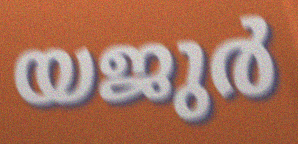
യജുർ